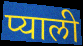
प्याली